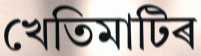
খেতিমাটিৰ